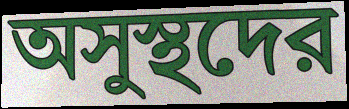
অসুস্থদের